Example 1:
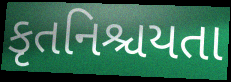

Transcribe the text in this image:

કૃતનિશ્ચયતા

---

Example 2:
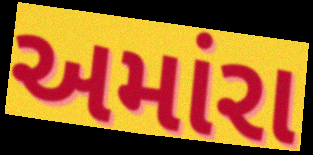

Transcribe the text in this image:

અમાંરા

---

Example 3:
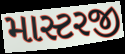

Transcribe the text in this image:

માસ્ટરજી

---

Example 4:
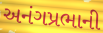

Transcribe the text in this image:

અનંગપ્રભાની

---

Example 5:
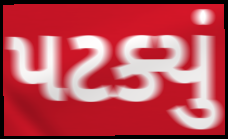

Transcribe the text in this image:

પટક્યું